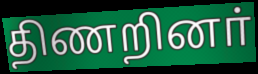
திணறினர்